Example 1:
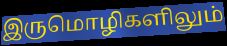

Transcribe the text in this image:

இருமொழிகளிலும்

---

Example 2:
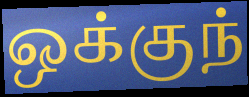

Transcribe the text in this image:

ஒக்குந்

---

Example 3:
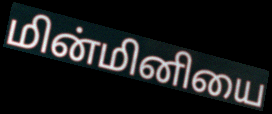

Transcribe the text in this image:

மின்மினியை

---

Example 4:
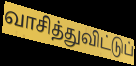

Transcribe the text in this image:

வாசித்துவிட்டுப்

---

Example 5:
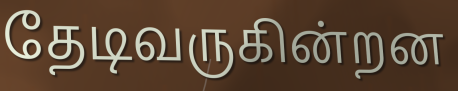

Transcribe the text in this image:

தேடிவருகின்றன